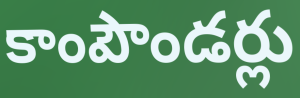
కాంపౌండర్లు